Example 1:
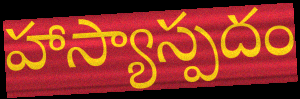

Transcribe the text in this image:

హాస్యాస్పదం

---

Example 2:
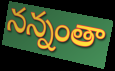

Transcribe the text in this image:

నన్నంతా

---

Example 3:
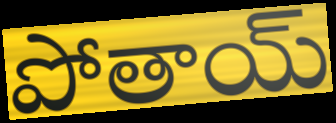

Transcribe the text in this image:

పోతాయ్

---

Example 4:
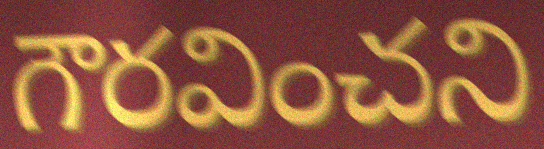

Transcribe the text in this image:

గౌరవించని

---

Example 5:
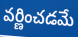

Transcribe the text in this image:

వర్ణించడమే